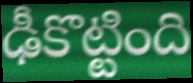
ఢీకొట్టింది